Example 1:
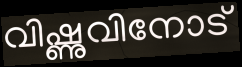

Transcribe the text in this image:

വിഷ്ണുവിനോട്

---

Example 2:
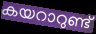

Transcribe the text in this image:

കയറാറുണ്ട്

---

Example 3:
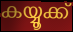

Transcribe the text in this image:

കയ്യൂക്ക്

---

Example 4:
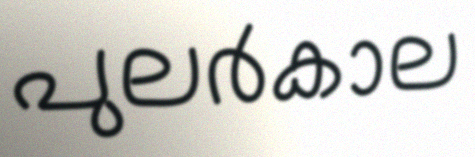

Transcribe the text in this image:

പുലർകാല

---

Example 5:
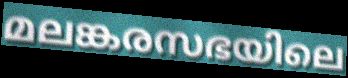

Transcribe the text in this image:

മലങ്കരസഭയിലെ